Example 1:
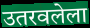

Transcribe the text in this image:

उतरवलेला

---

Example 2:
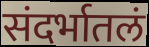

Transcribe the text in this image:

संदर्भातलं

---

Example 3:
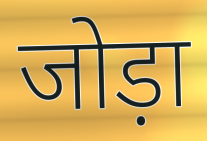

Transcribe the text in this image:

जोड़ा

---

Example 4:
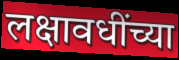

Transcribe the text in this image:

लक्षावधींच्या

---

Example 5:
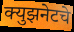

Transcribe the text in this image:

क्युझनेटचे